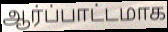
ஆர்ப்பாட்டமாக